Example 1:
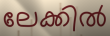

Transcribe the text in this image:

ലേക്കിൽ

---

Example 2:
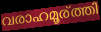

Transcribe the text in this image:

വരാഹമൂര്ത്തി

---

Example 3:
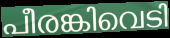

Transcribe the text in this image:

പീരങ്കിവെടി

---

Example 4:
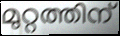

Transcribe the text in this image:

മുറ്റത്തിന്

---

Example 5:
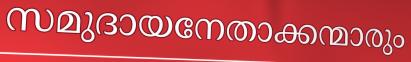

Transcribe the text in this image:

സമുദായനേതാക്കന്മാരും